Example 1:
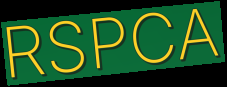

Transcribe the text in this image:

RSPCA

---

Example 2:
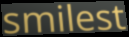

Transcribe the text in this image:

smilest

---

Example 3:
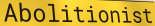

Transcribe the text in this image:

Abolitionist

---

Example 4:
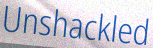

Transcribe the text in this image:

Unshackled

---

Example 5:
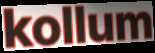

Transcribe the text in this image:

kollum